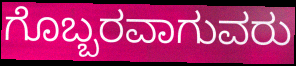
ಗೊಬ್ಬರವಾಗುವರು